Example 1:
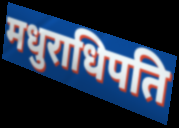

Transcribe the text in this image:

मधुराधिपति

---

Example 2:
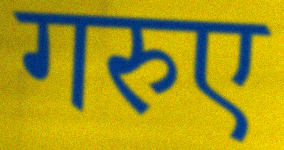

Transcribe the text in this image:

गरुए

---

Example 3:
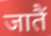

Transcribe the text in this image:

जातैं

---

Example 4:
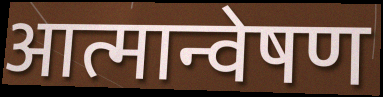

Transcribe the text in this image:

आत्मान्वेषण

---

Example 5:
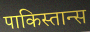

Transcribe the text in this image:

पाकिस्तान्स